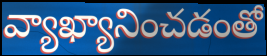
వ్యాఖ్యానించడంతో